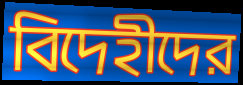
বিদেহীদের